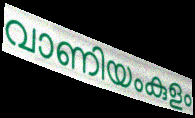
വാണിയംകുളം